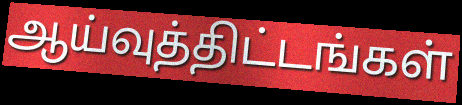
ஆய்வுத்திட்டங்கள்